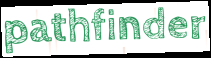
pathfinder